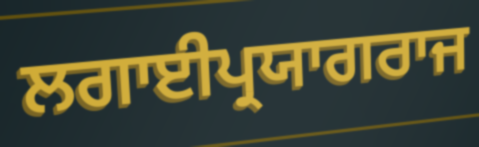
ਲਗਾਈਪ੍ਰਯਾਗਰਾਜ